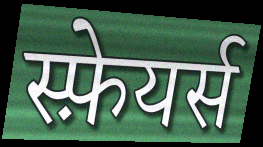
स्फ़ेयर्स